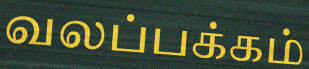
வலப்பக்கம்